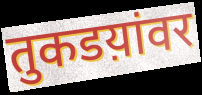
तुकडय़ांवर